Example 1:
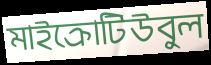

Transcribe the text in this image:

মাইক্রোটিউবুল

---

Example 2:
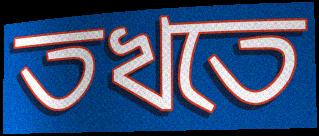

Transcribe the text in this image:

তখতে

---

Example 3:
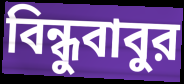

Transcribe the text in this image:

বিন্ধুবাবুর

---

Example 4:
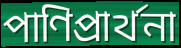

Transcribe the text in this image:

পাণিপ্রার্থনা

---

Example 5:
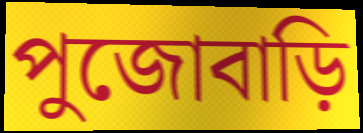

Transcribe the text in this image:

পুজোবাড়ি